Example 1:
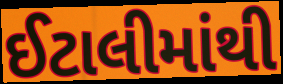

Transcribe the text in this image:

ઈટાલીમાંથી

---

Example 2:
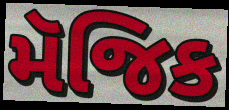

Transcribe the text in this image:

મૅજિક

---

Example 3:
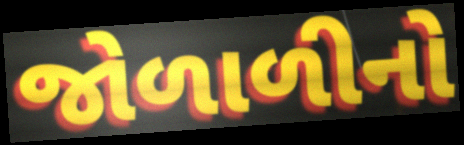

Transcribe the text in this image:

જોળાળીનો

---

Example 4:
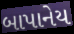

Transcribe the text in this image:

બાપાનેય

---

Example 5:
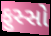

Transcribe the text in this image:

ફુસ્સો